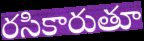
రసికారుతూ